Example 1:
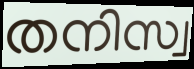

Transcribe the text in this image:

തനിസ്വ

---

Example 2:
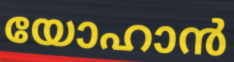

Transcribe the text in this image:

യോഹാൻ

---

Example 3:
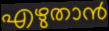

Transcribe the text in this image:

എഴുതാൻ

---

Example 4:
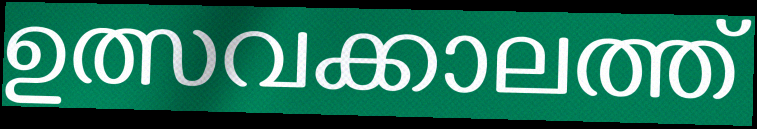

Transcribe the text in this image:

ഉത്സവക്കാലത്ത്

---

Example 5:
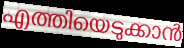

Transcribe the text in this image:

എത്തിയെടുക്കാൻ